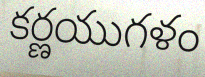
కర్ణయుగళం